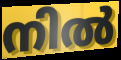
നിൽ